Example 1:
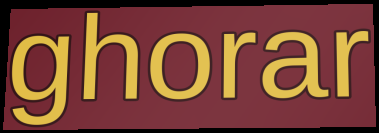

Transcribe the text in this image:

ghorar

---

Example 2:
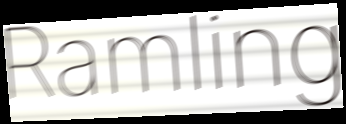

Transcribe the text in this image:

Ramling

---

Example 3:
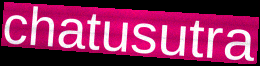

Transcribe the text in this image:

chatusutra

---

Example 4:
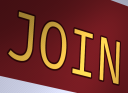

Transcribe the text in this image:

JOIN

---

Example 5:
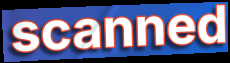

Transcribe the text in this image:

scanned